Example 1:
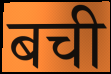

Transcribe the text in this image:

बची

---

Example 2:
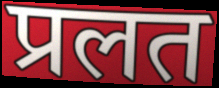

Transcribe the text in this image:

प्रलत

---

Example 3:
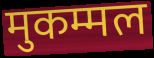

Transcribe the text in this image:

मुकम्मल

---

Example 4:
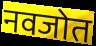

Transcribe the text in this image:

नवजोत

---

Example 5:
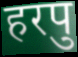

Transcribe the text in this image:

हरपु